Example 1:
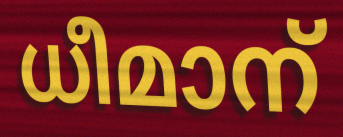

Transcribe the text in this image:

ധീമാന്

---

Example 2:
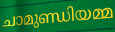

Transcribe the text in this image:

ചാമുണ്ഡിയമ്മ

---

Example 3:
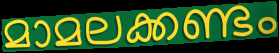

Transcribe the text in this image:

മാമലക്കണ്ടം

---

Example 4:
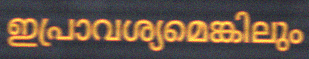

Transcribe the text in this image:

ഇപ്രാവശ്യമെങ്കിലും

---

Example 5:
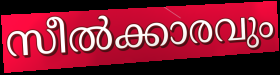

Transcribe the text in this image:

സീൽക്കാരവും